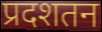
प्रदशतन